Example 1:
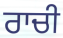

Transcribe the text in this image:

ਰਾਚੀ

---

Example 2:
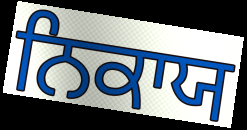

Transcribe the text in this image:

ਨਿਕਾਯ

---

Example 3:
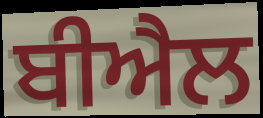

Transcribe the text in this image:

ਬੀਐਲ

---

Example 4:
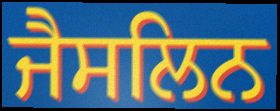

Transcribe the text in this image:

ਜੈਸਲਿਨ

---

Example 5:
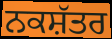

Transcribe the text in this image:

ਨਕਸ਼ੱਤਰ